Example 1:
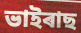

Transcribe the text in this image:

ভাইৰাছ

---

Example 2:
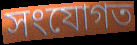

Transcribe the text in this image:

সংযোগত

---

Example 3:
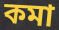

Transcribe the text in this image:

কমা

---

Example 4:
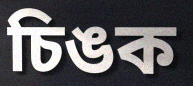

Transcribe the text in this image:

চিঙক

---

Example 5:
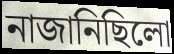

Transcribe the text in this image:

নাজানিছিলো